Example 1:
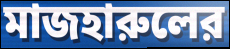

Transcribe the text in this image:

মাজহারুলের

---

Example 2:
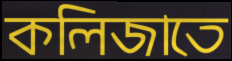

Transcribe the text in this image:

কলিজাতে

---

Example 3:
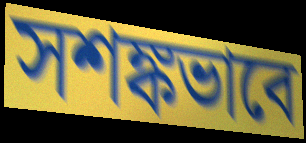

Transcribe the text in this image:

সশঙ্কভাবে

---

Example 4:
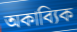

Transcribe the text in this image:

অকাব্যিক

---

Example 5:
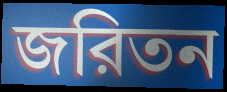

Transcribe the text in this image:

জরিতন